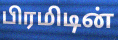
பிரமிடின்